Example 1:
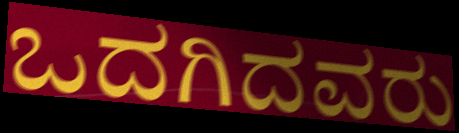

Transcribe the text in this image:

ಒದಗಿದವರು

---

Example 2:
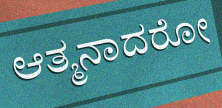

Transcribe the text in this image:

ಆತ್ಮನಾದರೋ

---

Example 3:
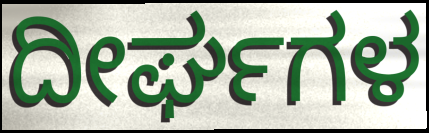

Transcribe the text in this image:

ದೀರ್ಘಗಳ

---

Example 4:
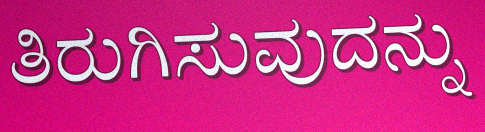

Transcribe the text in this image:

ತಿರುಗಿಸುವುದನ್ನು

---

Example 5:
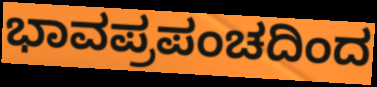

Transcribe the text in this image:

ಭಾವಪ್ರಪಂಚದಿಂದ